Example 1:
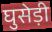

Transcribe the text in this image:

घुसेड़ी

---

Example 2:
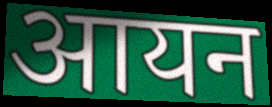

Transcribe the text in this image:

आयन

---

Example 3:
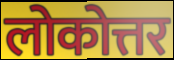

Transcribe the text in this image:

लोकोत्तर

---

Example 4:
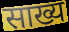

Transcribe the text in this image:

साख्य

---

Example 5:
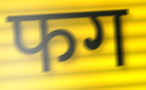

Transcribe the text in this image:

फग